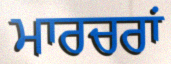
ਮਾਰਚਰਾਂ